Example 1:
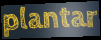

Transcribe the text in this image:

plantar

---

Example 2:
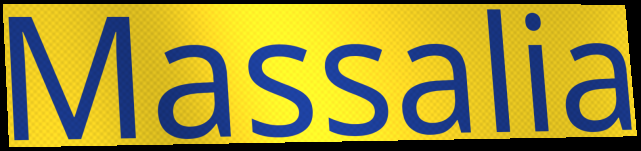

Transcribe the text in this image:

Massalia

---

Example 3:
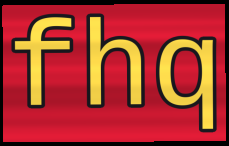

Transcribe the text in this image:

fhq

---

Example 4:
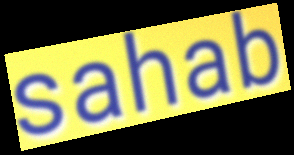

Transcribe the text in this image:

sahab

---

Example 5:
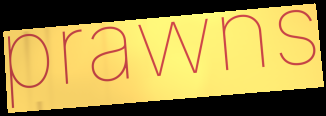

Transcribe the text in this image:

prawns